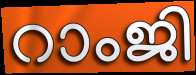
റാംജി